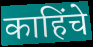
काहिंचे